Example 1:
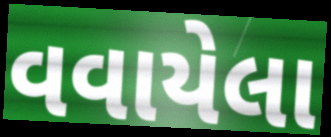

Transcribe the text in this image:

વવાયેલા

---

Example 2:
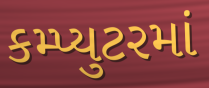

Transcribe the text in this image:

કમ્પ્યુટરમાં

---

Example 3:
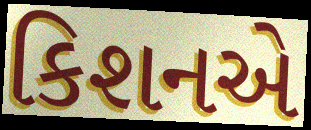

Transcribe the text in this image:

કિશનએ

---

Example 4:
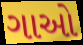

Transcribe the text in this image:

ગાઓ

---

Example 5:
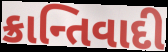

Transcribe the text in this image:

ક્રાન્તિવાદી